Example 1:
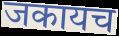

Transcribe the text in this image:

जकायच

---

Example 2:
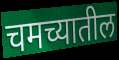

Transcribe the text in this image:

चमच्यातील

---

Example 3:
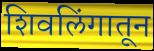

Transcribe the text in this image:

शिवलिंगातून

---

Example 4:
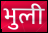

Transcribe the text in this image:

भुली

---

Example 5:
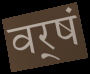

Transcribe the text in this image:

वर्षं